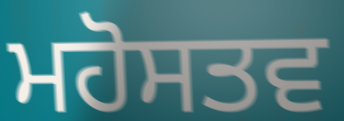
ਮਹੋਸਤਵ